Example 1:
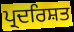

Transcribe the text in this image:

ਪ੍ਰਦਰਿਸ਼ਤ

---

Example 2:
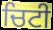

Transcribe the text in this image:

ਚਿਟੀ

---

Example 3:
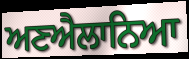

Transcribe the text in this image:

ਅਣਐਲਾਨਿਆ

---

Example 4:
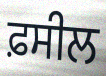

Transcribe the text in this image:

ਫ਼ਸੀਲ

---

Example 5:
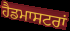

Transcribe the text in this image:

ਹੈਡਮਾਸਟਰਾਂ